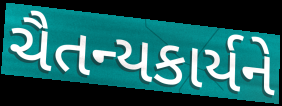
ચૈતન્યકાર્યને